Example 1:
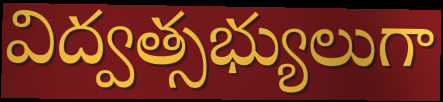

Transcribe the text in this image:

విద్వత్సభ్యులుగా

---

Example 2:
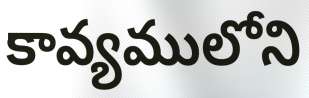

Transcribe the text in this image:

కావ్యములోని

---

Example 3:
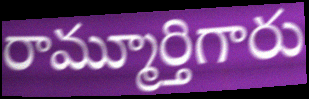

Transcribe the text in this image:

రామ్మూర్తిగారు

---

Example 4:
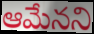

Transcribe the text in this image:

ఆమేనని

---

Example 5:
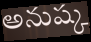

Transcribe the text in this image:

అనుష్క